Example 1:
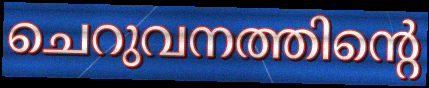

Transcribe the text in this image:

ചെറുവനത്തിന്റെ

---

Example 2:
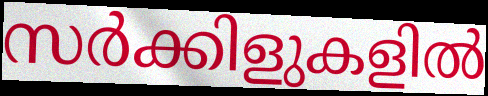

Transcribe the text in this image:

സർക്കിളുകളിൽ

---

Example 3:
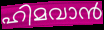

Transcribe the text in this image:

ഹിമവാൻ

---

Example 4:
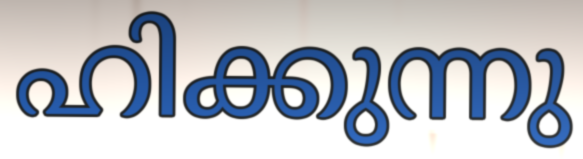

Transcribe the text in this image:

ഹിക്കുന്നു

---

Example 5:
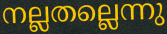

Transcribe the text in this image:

നല്ലതല്ലെന്നു